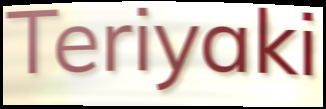
Teriyaki